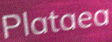
Plataea